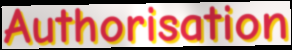
Authorisation